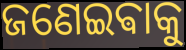
ଜଣେଇଵାକୁ